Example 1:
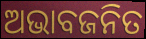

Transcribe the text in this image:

ଅଭାବଜନିତ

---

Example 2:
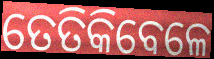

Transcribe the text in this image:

ତେତିକିବେଳେ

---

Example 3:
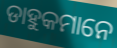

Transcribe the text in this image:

ଡାହୁକମାନେ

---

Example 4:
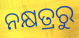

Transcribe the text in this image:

ନକ୍ଷତ୍ରରୁ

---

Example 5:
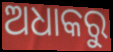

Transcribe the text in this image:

ଅଧାକରୁ